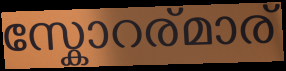
സ്കോറര്മാര്